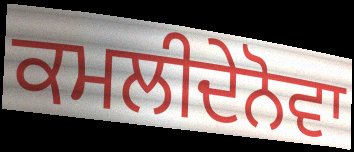
ਕਮਲੀਦੇਨੋਵਾ